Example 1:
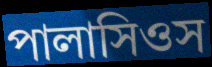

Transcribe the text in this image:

পালাসিওস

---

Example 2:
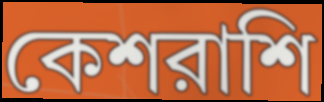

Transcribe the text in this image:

কেশরাশি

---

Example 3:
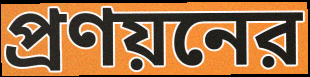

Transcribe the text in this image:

প্রণয়নের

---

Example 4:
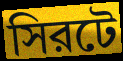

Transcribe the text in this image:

সিরটে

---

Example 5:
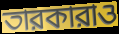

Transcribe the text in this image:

তারকারাও